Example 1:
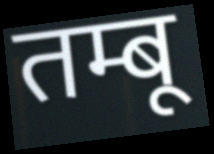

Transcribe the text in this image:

तम्बू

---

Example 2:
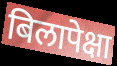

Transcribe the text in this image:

बिलापेक्षा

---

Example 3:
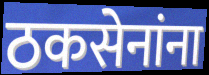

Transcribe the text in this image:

ठकसेनांना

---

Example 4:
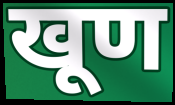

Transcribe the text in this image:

खूण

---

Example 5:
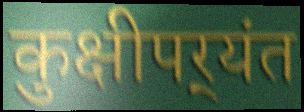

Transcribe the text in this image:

कुक्षीपर्यंत